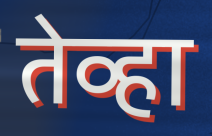
तेव्हा